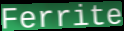
Ferrite